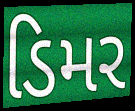
ડિમર